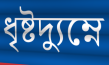
ধৃষ্টদ্যুম্নে